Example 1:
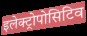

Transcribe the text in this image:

इलेक्ट्रोपोसिटिव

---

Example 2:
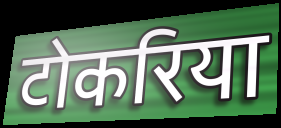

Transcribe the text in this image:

टोकरिया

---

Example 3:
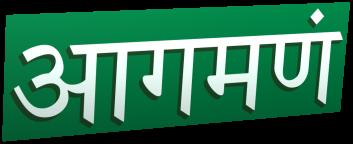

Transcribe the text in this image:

आगमणं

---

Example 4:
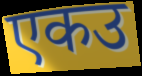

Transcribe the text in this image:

एकउ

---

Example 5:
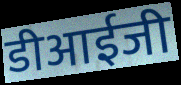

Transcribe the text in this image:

डीआईजी